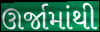
ઊર્જામાંથી